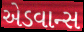
એડવાન્સ